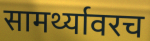
सामर्थ्यावरच